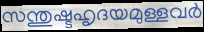
സന്തുഷ്ടഹൃദയമുള്ളവർ